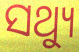
ସଥ୍ୟୁ